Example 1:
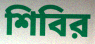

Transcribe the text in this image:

শিবির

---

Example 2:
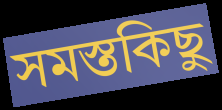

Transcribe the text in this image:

সমস্তকিছু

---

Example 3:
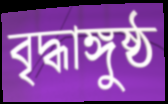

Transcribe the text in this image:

বৃদ্ধাঙ্গুষ্ঠ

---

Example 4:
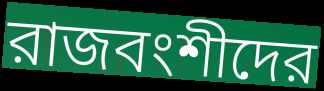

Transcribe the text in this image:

রাজবংশীদের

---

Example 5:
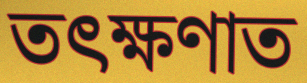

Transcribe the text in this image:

তৎক্ষণাত